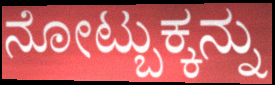
ನೋಟ್ಬುಕ್ಕನ್ನು